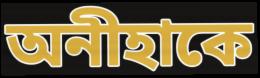
অনীহাকে